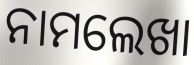
ନାମଲେଖା